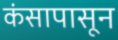
कंसापासून